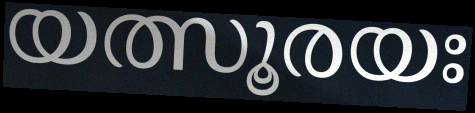
യത്സൂരയഃ